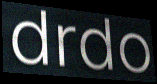
drdo